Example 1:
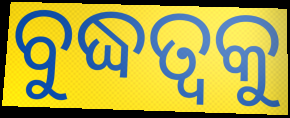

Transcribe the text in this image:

ବୁଦ୍ଧତ୍ଵକୁ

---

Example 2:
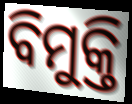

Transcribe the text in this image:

ବିମୁକ୍ତି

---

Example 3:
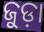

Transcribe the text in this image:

ଜୁଡ଼ା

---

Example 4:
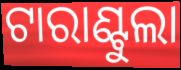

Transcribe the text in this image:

ଟାରାଣ୍ଟୁଲା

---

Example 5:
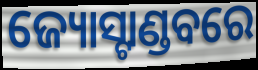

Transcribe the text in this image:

ଜ୍ୟୋସ୍ଟାଣ୍ଡବରେ